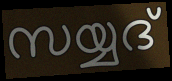
സയ്യദ്